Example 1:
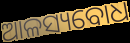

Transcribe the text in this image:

ଆଳସ୍ୟବୋଧ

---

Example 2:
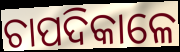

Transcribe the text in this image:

ଚାପଦିକାଳେ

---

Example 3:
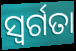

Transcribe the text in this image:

ସ୍ୱର୍ଗତା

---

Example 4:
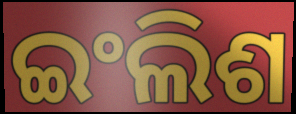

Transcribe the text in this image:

ଇଂଲିଶ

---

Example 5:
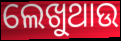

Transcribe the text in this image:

ଲେଖୁଥାଉ